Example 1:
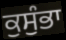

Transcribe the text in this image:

ਕੁਸੁੰਭਾ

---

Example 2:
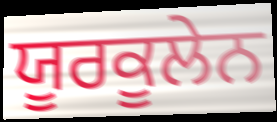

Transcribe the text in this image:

ਯੂਰਕੂਲੇਨ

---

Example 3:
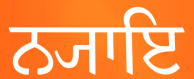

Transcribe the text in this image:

ਨ੍ਯਾਇ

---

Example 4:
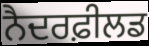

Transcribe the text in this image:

ਨੈਦਰਫ਼ੀਲਡ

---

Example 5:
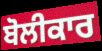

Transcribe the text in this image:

ਬੋਲੀਕਾਰ